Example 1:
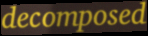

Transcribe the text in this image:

decomposed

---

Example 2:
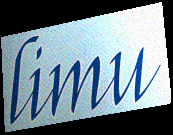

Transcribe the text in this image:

limu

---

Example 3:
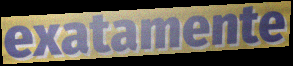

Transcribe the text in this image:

exatamente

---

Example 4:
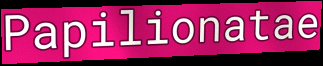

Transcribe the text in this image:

Papilionatae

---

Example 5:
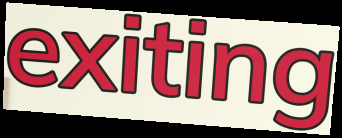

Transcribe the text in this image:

exiting